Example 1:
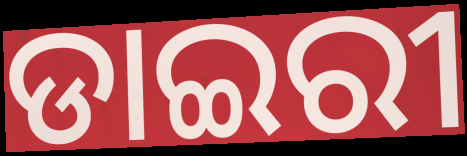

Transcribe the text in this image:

ଡାଇରୀ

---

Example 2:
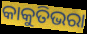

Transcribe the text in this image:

କାକୁତିଭରା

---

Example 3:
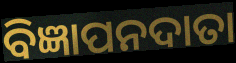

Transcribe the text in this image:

ବିଜ୍ଞାପନଦାତା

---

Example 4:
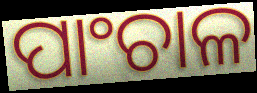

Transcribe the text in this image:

ପାଂଚାଳ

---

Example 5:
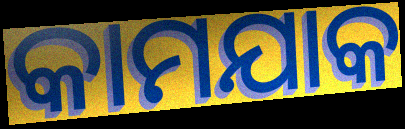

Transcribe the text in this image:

କାମଯାକ